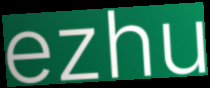
ezhu